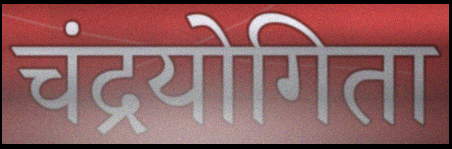
चंद्रयोगिता